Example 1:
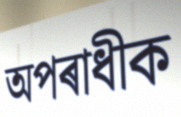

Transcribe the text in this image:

অপৰাধীক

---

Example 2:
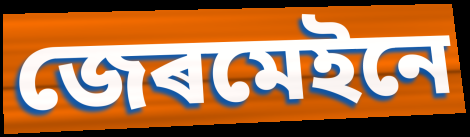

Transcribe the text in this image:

জেৰমেইনে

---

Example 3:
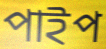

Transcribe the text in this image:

পাইপ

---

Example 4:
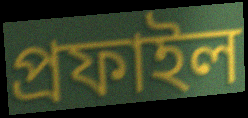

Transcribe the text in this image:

প্ৰফাইল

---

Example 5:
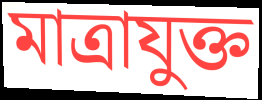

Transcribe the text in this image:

মাত্ৰাযুক্ত